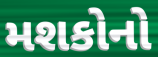
મશકોનો